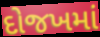
દોજખમાં